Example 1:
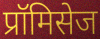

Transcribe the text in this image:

प्रॉमिसेज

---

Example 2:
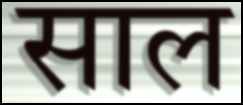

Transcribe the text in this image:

साल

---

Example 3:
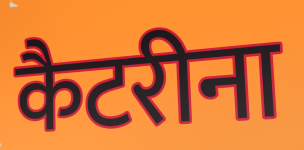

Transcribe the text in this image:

कैटरीना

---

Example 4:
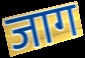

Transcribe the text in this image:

जाग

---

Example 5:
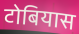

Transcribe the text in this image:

टोबियास